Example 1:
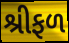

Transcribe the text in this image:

શ્રીફળ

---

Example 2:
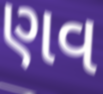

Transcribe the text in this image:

ણવ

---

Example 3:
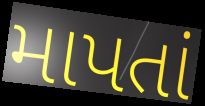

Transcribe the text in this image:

માપતાં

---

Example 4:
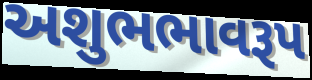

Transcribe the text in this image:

અશુભભાવરૂપ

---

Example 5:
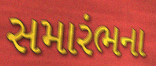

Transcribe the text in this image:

સમારંભના